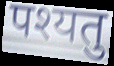
पश्यतु